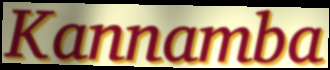
Kannamba